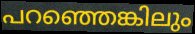
പറഞ്ഞെങ്കിലും